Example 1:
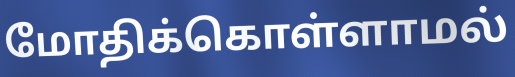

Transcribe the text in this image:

மோதிக்கொள்ளாமல்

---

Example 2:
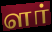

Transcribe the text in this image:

ளர்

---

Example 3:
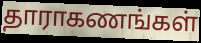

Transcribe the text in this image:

தாராகணங்கள்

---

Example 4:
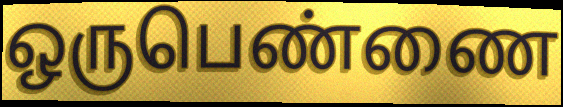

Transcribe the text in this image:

ஒருபெண்ணை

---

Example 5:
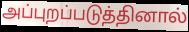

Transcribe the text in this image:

அப்புறப்படுத்தினால்